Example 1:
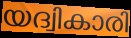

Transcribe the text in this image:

യദ്വികാരി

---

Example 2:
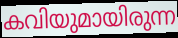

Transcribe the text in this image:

കവിയുമായിരുന്ന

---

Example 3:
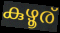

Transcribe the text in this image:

കുഴൂര്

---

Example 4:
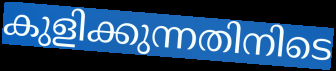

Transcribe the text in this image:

കുളിക്കുന്നതിനിടെ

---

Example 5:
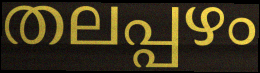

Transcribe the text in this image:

തലപ്പഴം